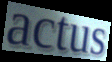
actus